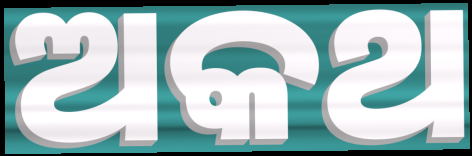
ଅକଥ